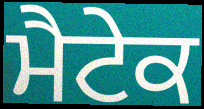
ਮੈਟੇਕ